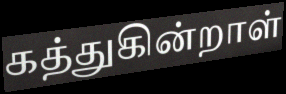
கத்துகின்றாள்